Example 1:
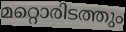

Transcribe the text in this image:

മറ്റൊരിടത്തും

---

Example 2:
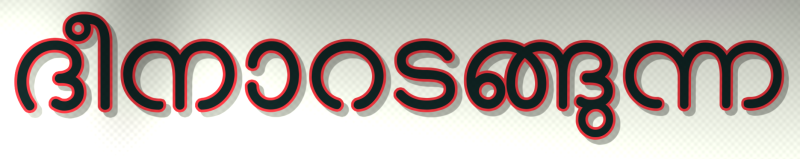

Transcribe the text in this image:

ദീനാറടങ്ങുന്ന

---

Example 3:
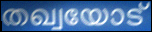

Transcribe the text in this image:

തഖ്വയോട്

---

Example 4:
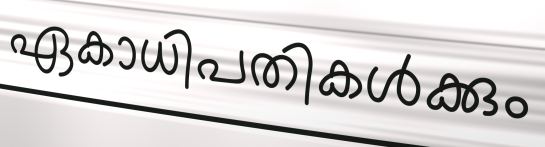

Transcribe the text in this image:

ഏകാധിപതികൾക്കും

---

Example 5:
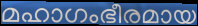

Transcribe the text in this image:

മഹാഗംഭീരമായ